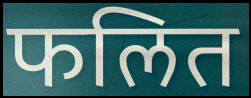
फलित